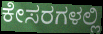
ಕೇಸರಗಳಲ್ಲಿ